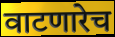
वाटणारेच